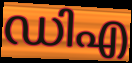
ഡിഎ